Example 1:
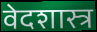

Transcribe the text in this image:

वेदशास्त्र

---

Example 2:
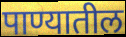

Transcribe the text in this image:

पाण्यातील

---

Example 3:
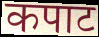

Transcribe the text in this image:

कपाट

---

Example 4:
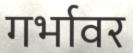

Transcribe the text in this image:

गर्भावर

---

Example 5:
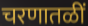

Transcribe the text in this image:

चरणातळीं